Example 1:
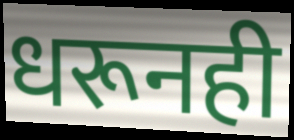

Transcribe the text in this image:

धरूनही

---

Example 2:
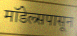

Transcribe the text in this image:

मॉडेल्सपासून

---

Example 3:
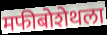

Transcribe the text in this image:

मफीबोशेथला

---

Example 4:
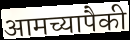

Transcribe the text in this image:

आमच्यापैकी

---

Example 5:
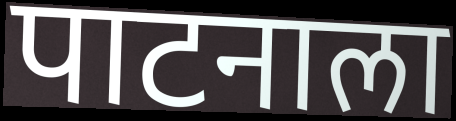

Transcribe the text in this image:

पाटनाला